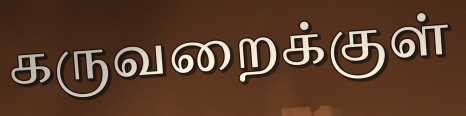
கருவறைக்குள்